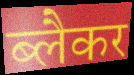
ब्लैकर